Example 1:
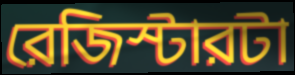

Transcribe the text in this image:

রেজিস্টারটা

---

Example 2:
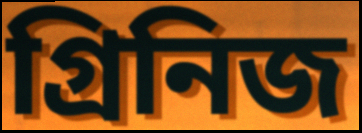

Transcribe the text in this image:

গ্রিনিজ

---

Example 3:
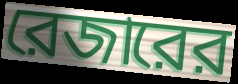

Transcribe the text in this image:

রেজারের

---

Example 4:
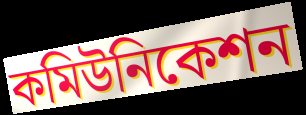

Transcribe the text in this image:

কমিউনিকেশন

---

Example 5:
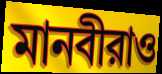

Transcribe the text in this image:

মানবীরাও